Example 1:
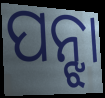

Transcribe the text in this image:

ପନ୍ଝା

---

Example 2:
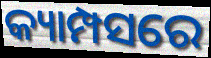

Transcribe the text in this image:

କ୍ୟାମ୍ପସରେ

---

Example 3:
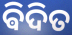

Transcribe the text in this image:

ଵିଦିତ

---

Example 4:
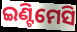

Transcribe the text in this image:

ଇଣ୍ଟିମେସି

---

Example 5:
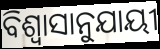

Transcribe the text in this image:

ବିଶ୍ୱାସାନୁଯାୟୀ